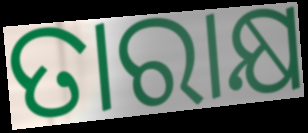
ତାରାକ୍ଷ